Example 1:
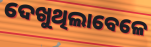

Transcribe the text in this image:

ଦେଖୁଥିଲାବେଳେ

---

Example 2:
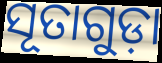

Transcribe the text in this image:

ସୂତାଗୁଡ଼ା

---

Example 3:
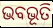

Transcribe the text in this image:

ଭବଭୂତି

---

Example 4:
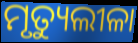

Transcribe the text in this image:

ମୃତ୍ୟୁଲୀଳା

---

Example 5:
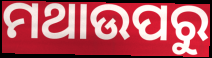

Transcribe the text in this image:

ମଥାଉପରୁ